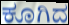
ಕೂಗಿದ